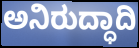
ಅನಿರುದ್ಧಾದಿ